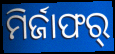
ମିର୍ଜାଫର୍